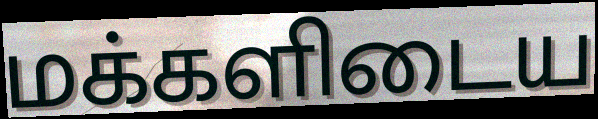
மக்களிடைய